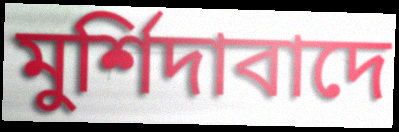
মুর্শিদাবাদে